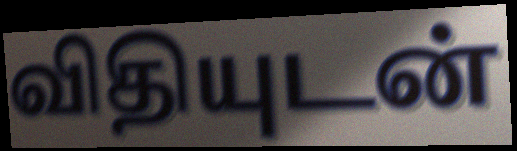
விதியுடன்